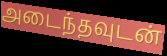
அடைந்தவுடன்